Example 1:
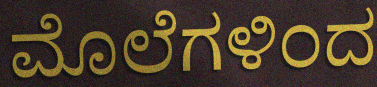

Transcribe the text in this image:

ಮೊಲೆಗಳಿಂದ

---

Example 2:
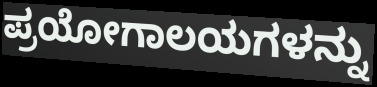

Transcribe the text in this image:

ಪ್ರಯೋಗಾಲಯಗಳನ್ನು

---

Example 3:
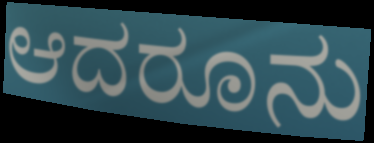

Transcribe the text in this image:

ಆದರೂನು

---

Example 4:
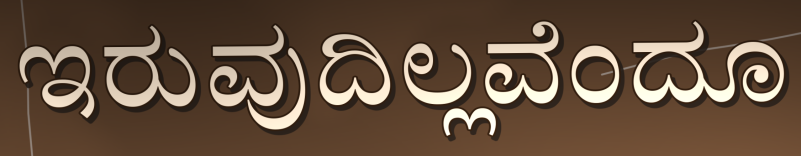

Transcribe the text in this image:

ಇರುವುದಿಲ್ಲವೆಂದೂ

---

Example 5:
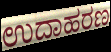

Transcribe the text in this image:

ಉದಾಹರಣ